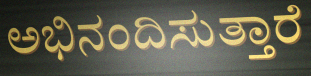
ಅಭಿನಂದಿಸುತ್ತಾರೆ